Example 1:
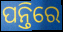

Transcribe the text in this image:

ପନ୍ତିରେ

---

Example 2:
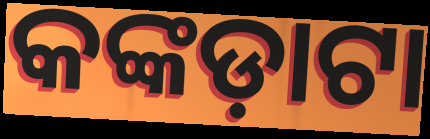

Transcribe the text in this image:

କଙ୍କଡ଼ାଟା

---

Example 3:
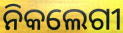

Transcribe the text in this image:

ନିକଲେଗୀ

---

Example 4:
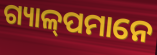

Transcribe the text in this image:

ଗ୍ୟାଳ୍‍ପମାନେ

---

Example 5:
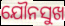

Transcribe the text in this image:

ଯୌନସୁଖ